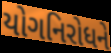
યોગનિરોધને